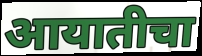
आयातीचा